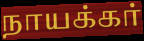
நாயக்கர்